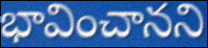
భావించానని